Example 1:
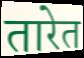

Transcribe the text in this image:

तारेत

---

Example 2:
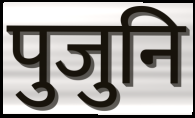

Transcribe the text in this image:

पुजुनि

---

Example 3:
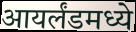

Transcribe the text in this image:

आयर्लंडमध्ये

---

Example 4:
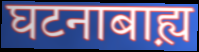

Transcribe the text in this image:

घटनाबाह्य़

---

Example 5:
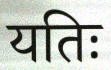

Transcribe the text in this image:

यतिः